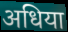
अधिया